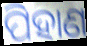
ପିହାଣ